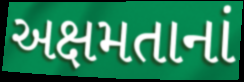
અક્ષમતાનાં